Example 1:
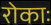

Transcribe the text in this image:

रोकाः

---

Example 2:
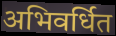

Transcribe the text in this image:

अभिवर्धित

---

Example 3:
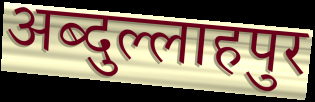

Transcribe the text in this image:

अब्दुल्लाहपुर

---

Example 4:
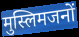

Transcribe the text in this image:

मुस्लिमजनों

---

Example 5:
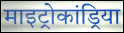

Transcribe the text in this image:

माइट्रोकांड्रिया